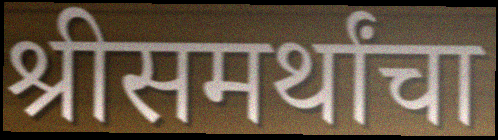
श्रीसमर्थांचा